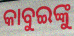
କାବୁଇଙ୍କୁ